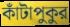
কাঁটাপুকুর